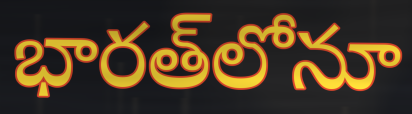
భారత్‌లోనూ